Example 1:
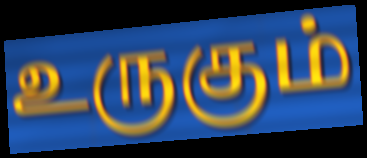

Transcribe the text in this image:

உருகும்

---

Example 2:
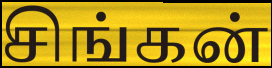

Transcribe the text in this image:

சிங்கன்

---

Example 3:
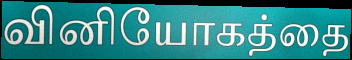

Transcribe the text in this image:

வினியோகத்தை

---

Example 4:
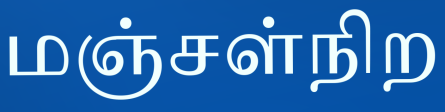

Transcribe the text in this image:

மஞ்சள்நிற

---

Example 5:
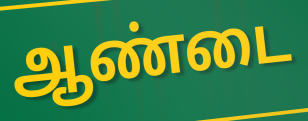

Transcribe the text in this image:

ஆண்டை